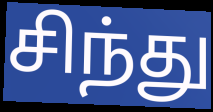
சிந்து